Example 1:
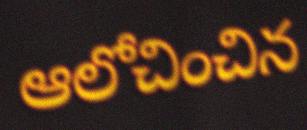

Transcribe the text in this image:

ఆలోచించిన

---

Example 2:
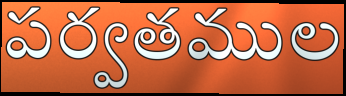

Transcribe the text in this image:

పర్వతముల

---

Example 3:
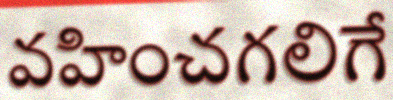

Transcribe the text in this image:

వహించగలిగే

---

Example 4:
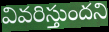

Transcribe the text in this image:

వివరిస్తుందని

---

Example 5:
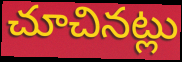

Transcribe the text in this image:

చూచినట్లు